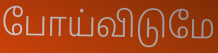
போய்விடுமே